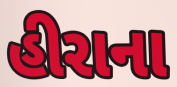
હીરાના